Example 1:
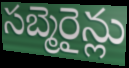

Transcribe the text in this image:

సబ్మెరైన్లు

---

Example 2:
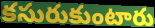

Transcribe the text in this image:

కసురుకుంటారు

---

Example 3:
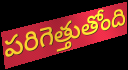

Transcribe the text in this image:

పరిగెత్తుతోంది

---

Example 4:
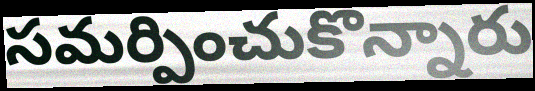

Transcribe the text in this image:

సమర్పించుకొన్నారు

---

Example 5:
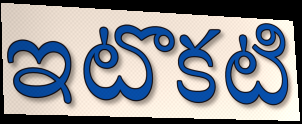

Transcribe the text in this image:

ఇటొకటి